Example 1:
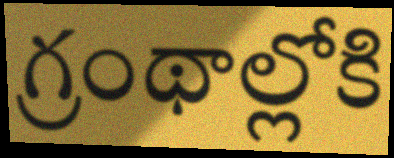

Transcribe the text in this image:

గ్రంథాల్లోకి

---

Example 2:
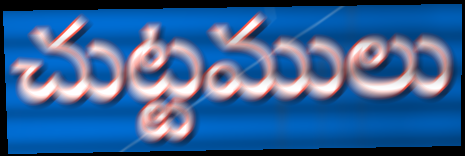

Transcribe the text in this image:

చుట్టములు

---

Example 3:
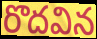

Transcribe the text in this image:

రొదవిన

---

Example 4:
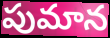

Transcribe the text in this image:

పుమాన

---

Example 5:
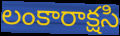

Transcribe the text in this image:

లంకారాక్షసి